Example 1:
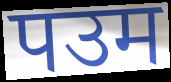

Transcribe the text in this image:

पउम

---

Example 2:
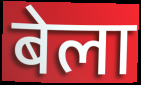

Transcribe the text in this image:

बेला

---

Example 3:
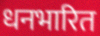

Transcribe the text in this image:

धनभारित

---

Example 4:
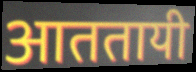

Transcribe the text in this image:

आततायी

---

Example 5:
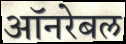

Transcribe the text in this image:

ऑनरेबल